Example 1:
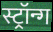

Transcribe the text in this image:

स्ट्रॉन्ग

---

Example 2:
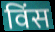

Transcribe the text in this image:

विंस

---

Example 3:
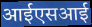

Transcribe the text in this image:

आईएसआई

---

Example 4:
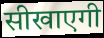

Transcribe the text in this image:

सीखाएगी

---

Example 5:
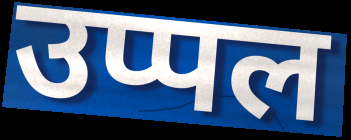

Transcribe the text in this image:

उप्पल